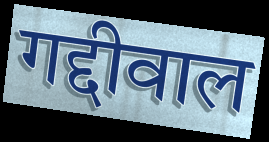
गद्दीवाल